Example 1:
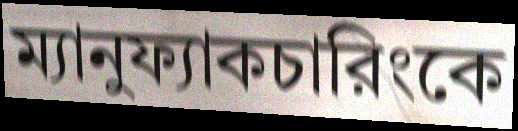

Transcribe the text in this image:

ম্যানুফ্যাকচারিংকে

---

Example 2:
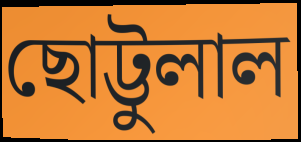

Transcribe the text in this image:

ছোট্টুলাল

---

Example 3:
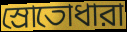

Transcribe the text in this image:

স্রোতোধারা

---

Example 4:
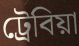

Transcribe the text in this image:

ট্রেবিয়া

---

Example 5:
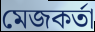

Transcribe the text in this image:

মেজকর্তা